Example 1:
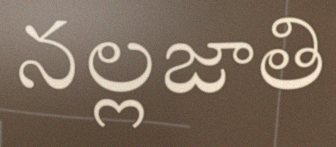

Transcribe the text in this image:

నల్లజాతి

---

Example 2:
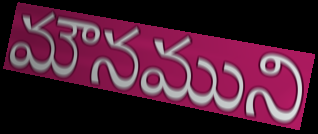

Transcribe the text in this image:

మౌనముని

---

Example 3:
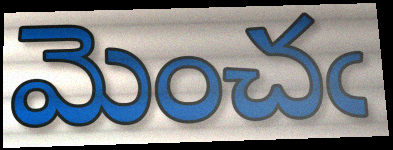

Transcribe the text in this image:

మెంచఁ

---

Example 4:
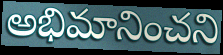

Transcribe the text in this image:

అభిమానించని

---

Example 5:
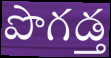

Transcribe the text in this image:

పొగడ్త